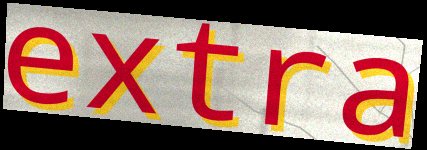
extra